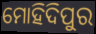
ମୋହିଦିପୁର